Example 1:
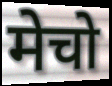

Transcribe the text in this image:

मेचो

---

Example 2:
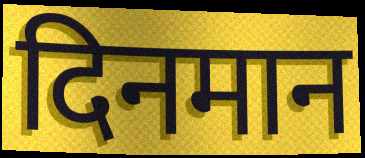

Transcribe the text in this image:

दिनमान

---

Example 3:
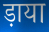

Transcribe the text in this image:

ड़ाया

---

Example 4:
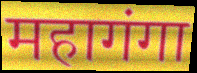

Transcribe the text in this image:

महागंगा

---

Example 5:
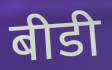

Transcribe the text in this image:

बीडी